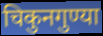
चिकुनगुण्या